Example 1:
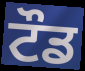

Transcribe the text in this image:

ਟੌਡ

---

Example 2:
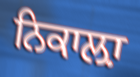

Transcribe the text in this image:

ਨਿਕਾਲ਼ਾ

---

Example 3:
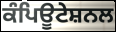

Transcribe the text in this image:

ਕੰਪਿਊਟੇਸ਼ਨਲ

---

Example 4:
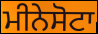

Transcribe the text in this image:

ਮੀਨੇਸੋਟਾ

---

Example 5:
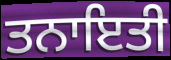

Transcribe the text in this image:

ਤਨਾਇਤੀ